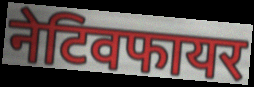
नेटिवफायर